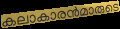
കലാകാരൻമാരുടെ